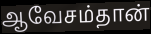
ஆவேசம்தான்